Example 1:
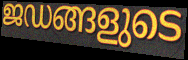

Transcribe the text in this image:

ജഡങ്ങളുടെ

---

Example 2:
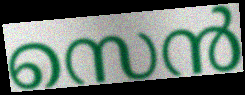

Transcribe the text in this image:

സെൻ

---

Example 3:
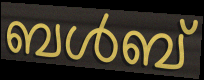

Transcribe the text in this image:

ബൾബ്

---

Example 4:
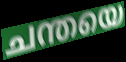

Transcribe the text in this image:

ചന്തയെ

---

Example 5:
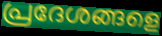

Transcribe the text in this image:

പ്രദേശങ്ങളെ